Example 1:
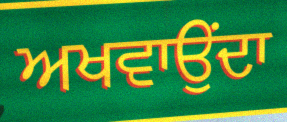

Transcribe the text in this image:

ਅਖਵਾਉਂਦਾ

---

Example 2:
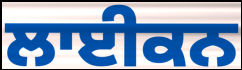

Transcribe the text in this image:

ਲਾਈਕਨ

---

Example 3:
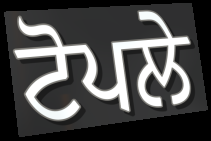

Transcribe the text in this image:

ਟੋਪਲੇ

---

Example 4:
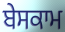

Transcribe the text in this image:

ਬੇਸਕਾਮ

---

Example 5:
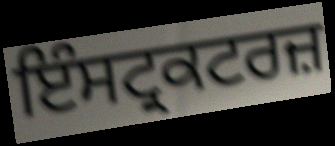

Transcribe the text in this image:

ਇੰਸਟ੍ਰਕਟਰਜ਼